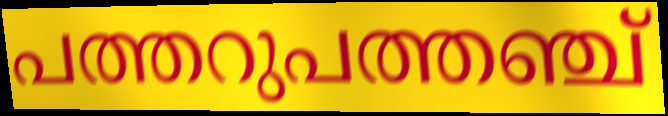
പത്തറുപത്തഞ്ച്